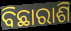
ବିଛାରାଶି